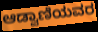
ಆಡ್ವಾಣಿಯವರ